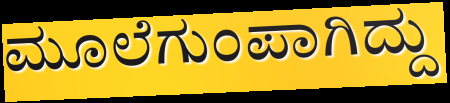
ಮೂಲೆಗುಂಪಾಗಿದ್ದು